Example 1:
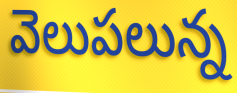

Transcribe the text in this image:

వెలుపలున్న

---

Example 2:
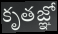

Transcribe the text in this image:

కృతజ్ఞో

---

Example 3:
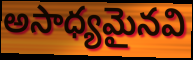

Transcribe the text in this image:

అసాధ్యమైనవి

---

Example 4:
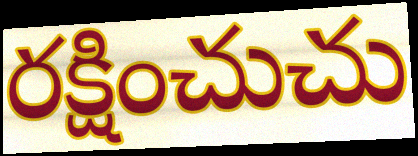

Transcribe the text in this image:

రక్షించుచు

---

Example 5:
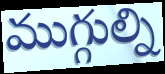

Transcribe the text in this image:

ముగ్గుల్ని